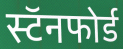
स्टॅनफोर्ड